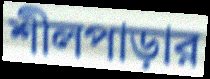
শীলপাড়ার